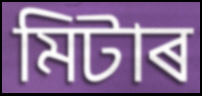
মিটাৰ